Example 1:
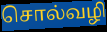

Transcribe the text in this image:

சொல்வழி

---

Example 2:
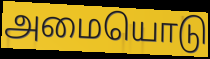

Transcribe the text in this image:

அமையொடு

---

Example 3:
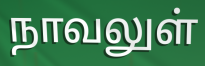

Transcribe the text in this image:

நாவலுள்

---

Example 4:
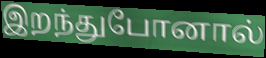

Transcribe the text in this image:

இறந்துபோனால்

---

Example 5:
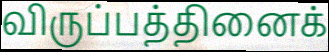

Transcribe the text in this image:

விருப்பத்தினைக்